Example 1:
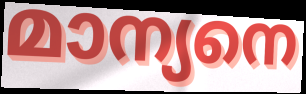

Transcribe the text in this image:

മാന്യനെ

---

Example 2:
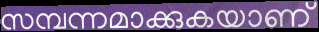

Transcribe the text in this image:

സമ്പന്നമാക്കുകയാണ്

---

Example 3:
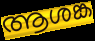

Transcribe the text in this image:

ആശങ്ക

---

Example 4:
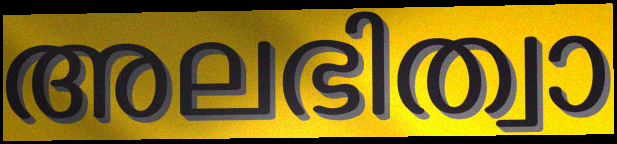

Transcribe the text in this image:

അലഭിത്വാ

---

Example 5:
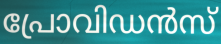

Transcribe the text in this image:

പ്രോവിഡൻസ്